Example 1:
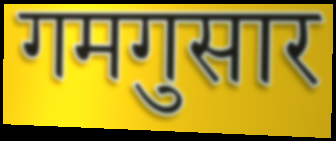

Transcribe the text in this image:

गमगुसार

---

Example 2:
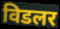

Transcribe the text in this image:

विडलर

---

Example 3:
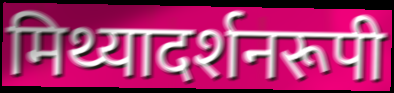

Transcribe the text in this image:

मिथ्यादर्शनरूपी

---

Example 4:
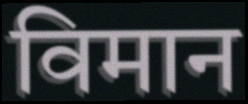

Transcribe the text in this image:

विमान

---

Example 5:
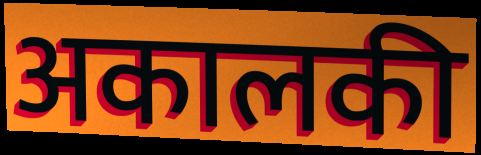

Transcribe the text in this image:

अकालकी